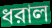
ধরাল